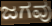
ಜಗವು